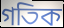
গতিক